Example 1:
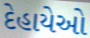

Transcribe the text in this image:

દેહાયેઓ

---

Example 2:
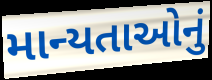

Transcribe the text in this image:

માન્યતાઓનું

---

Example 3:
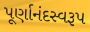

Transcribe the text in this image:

પૂર્ણાનંદસ્વરૂપ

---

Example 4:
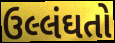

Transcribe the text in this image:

ઉલ્લંઘતો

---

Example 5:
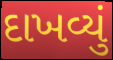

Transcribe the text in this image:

દાખવ્યું